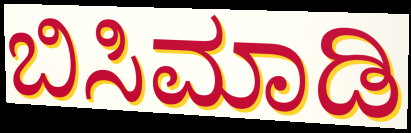
ಬಿಸಿಮಾಡಿ